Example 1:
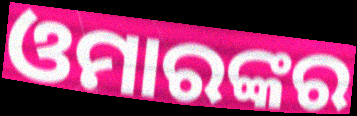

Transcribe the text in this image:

ଓମାରଙ୍କର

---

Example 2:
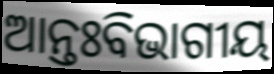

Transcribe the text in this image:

ଆନ୍ତଃବିଭାଗୀୟ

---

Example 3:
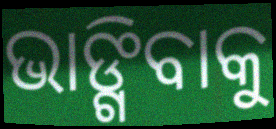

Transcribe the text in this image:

ଭାଙ୍ଗିବାକୁ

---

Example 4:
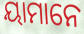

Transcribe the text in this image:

ୟାମାନେ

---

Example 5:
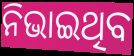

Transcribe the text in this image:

ନିଭାଇଥିବ